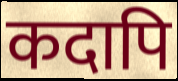
कदापि